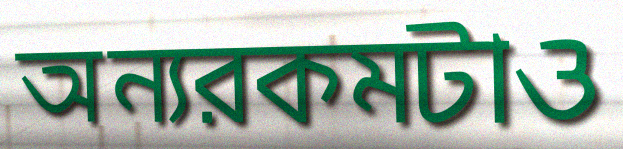
অন্যরকমটাও